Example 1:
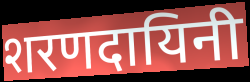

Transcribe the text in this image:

शरणदायिनी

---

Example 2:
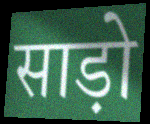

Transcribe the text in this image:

साड़ो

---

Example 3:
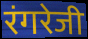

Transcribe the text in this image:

रंगरेजी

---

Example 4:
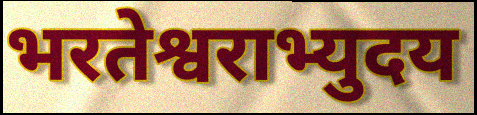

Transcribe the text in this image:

भरतेश्वराभ्युदय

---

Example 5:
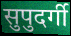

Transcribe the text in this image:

सुपुदर्गी